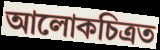
আলোকচিত্ৰত